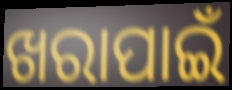
ଖରାପାଇଁ